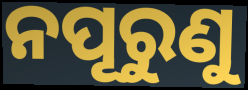
ନପୂରୁଣୁ